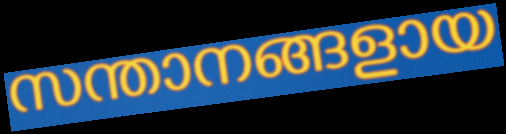
സന്താനങ്ങളായ